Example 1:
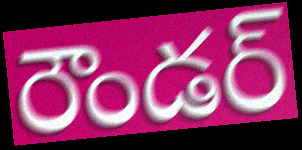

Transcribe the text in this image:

రౌండర్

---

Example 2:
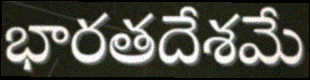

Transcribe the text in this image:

భారతదేశమే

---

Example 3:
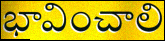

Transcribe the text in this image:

భావించాలి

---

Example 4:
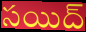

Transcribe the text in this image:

సయిద్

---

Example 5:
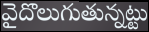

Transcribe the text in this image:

వైదొలుగుతున్నట్టు